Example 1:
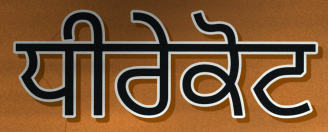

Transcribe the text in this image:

ਧੀਰੇਕੋਟ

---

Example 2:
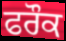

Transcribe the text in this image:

ਫਰੌਕ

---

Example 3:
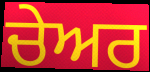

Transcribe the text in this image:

ਚੇਅਰ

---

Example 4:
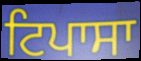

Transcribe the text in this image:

ਟਿਪਾਸਾ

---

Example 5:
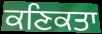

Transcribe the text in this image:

ਕਣਿਕਤਾ